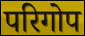
परिगोप